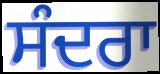
ਸੰਦਰਾ